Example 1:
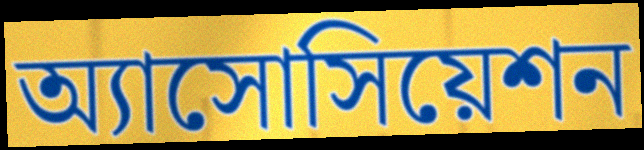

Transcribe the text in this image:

অ্যাসোসিয়েশন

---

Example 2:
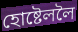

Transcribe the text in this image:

হোষ্টেললৈ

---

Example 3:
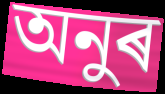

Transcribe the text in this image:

অনুৰ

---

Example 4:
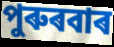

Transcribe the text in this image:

পুৰুৰবাৰ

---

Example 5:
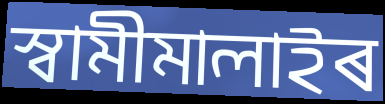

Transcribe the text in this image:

স্বামীমালাইৰ